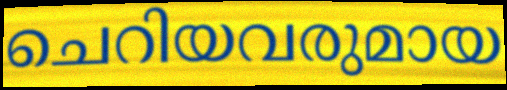
ചെറിയവരുമായ